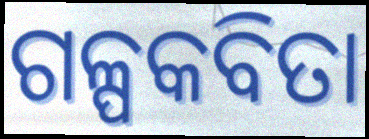
ଗଳ୍ପକବିତା